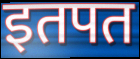
इतपत